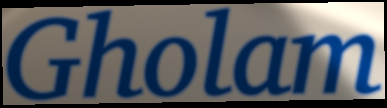
Gholam